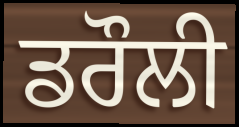
ਡਰੌਲੀ